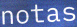
notas